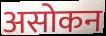
असोकन